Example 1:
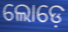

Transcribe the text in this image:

ଲୋଡ଼େ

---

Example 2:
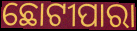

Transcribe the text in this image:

ଛୋଟୀପାରା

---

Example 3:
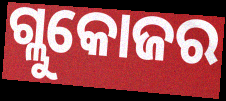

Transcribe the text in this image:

ଗ୍ଲୁକୋଜର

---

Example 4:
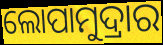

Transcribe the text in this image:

ଲୋପାମୁଦ୍ରାର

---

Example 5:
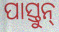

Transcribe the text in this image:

ପାସ୍ତୁନ୍